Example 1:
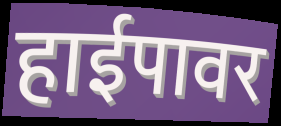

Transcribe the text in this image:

हाईपावर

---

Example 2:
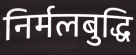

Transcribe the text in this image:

निर्मलबुद्धि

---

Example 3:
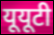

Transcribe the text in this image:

यूयूटी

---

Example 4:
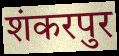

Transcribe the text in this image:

शंकरपुर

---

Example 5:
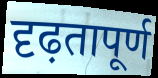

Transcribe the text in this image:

दृढ़तापूर्ण